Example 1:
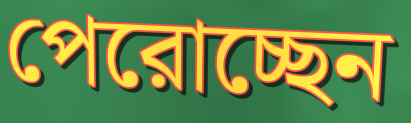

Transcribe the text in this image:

পেরোচ্ছেন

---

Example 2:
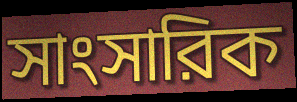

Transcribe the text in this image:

সাংসারিক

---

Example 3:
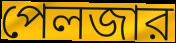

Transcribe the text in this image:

পেলজার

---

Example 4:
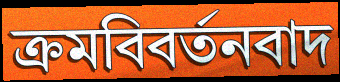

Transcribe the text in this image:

ক্রমবিবর্তনবাদ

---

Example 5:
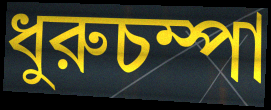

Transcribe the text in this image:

ধুরুচম্পা